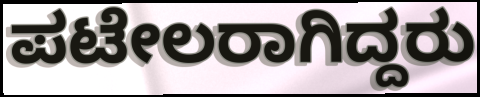
ಪಟೇಲರಾಗಿದ್ದರು